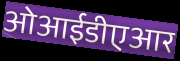
ओआईडीएआर